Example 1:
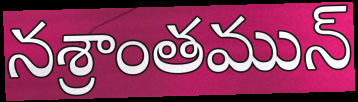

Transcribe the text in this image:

నశ్రాంతమున్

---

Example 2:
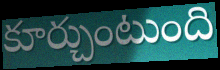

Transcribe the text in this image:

కూర్చుంటుంది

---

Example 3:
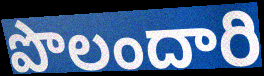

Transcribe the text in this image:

పొలందారి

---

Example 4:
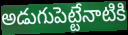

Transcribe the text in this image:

అడుగుపెట్టేనాటికి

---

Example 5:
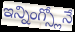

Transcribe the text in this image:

ఇన్నింగ్స్లోనే